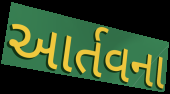
આર્તવના